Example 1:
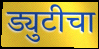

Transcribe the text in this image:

ड्युटीचा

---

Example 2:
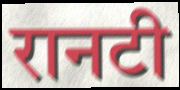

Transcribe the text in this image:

रानटी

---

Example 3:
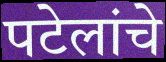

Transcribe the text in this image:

पटेलांचे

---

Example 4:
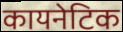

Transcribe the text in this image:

कायनेटिक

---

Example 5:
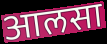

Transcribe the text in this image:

आलसा